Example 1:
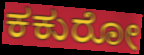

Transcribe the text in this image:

ಕಕುರೋ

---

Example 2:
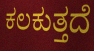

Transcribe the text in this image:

ಕಲಕುತ್ತದೆ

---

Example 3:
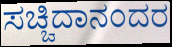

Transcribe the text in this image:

ಸಚ್ಚಿದಾನಂದರ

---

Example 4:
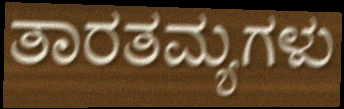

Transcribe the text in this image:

ತಾರತಮ್ಯಗಳು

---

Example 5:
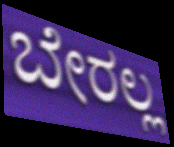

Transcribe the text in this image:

ಬೇರಲ್ಲ